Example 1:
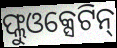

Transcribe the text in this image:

ଫ୍ଲୁଓକ୍ସେଟିନ୍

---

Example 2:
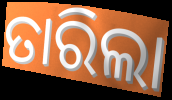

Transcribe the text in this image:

ତାରିଲା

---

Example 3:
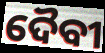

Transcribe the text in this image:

ଦୈବୀ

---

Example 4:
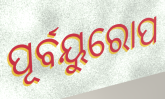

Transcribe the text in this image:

ପୂର୍ବୟୁରୋପ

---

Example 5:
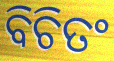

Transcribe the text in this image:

ବିଚିତଂ